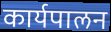
कार्यपालन